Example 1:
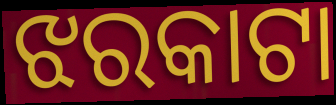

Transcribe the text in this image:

ଝରକାଟା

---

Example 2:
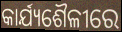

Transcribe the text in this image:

କାର୍ଯ୍ୟଶୈଳୀରେ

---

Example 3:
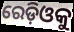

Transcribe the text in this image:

ରେଡ଼ିଓକୁ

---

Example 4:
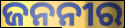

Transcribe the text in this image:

ଜନନୀର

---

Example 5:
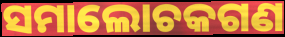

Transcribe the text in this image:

ସମାଲୋଚକଗଣ